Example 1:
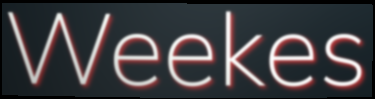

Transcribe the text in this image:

Weekes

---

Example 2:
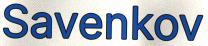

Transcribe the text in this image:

Savenkov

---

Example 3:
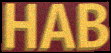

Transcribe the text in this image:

HAB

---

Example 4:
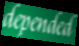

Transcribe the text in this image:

depended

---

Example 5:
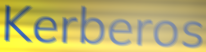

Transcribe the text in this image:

Kerberos